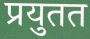
प्रयुतत